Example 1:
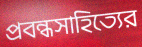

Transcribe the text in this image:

প্রবন্ধসাহিত্যের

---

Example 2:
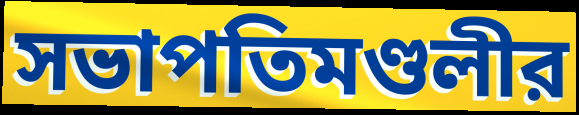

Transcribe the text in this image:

সভাপতিমণ্ডলীর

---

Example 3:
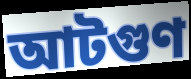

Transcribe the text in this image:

আটগুণ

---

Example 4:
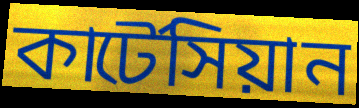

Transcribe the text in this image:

কার্টেসিয়ান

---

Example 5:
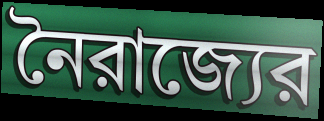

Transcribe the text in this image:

নৈরাজ্যের